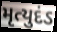
મૃત્યુદંડ